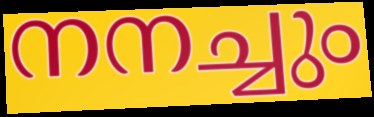
നനച്ചും